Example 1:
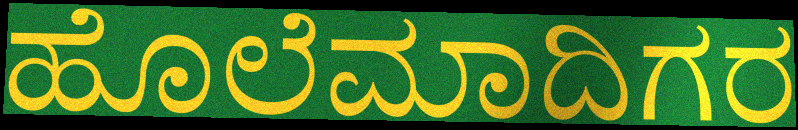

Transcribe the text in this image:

ಹೊಲೆಮಾದಿಗರ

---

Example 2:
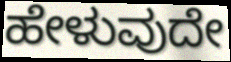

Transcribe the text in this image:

ಹೇಳುವುದೇ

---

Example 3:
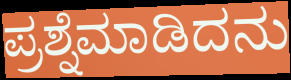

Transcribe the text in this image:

ಪ್ರಶ್ನೆಮಾಡಿದನು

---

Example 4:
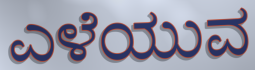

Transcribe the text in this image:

ಎಳೆಯುವ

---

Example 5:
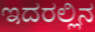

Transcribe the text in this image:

ಇದರಲ್ಲಿನ